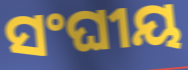
ସଂଘୀୟ